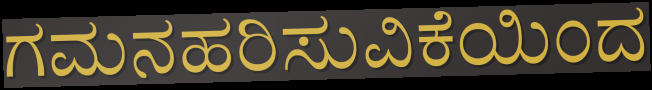
ಗಮನಹರಿಸುವಿಕೆಯಿಂದ